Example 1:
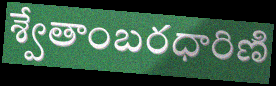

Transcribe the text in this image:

శ్వేతాంబరధారిణి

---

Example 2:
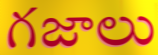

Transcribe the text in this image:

గజాలు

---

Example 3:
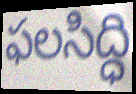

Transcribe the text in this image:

ఫలసిద్ధి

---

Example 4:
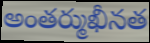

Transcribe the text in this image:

అంతర్ముఖీనత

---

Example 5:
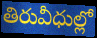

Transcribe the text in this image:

తిరువీధుల్లో